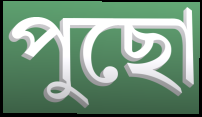
পুছো